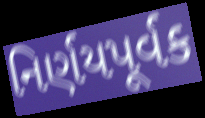
નિર્ણયપૂર્વક